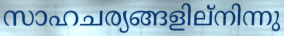
സാഹചര്യങ്ങളില്നിന്നു